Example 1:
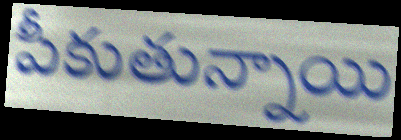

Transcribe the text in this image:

పీకుతున్నాయి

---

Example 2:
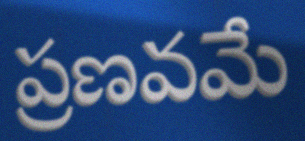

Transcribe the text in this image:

ప్రణవమే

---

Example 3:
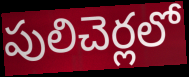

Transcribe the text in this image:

పులిచెర్లలో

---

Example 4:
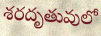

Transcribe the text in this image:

శరదృతువులో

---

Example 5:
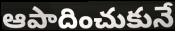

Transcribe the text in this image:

ఆపాదించుకునే